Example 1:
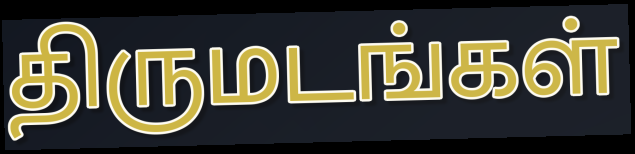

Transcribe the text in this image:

திருமடங்கள்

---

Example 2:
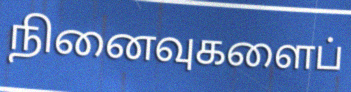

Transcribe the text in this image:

நினைவுகளைப்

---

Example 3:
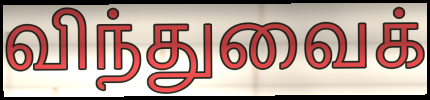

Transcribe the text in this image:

விந்துவைக்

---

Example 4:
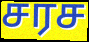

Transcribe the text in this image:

சரச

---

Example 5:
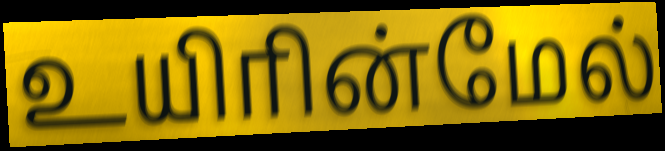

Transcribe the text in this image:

உயிரின்மேல்